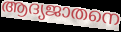
ആദ്യജാതനെ